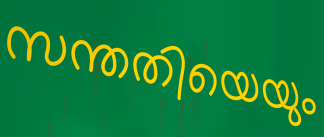
സന്തതിയെയും